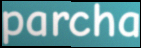
parcha